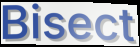
Bisect